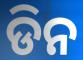
ଡିନ